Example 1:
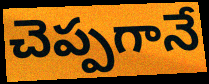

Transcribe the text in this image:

చెప్పగానే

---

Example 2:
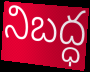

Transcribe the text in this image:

నిబద్ధ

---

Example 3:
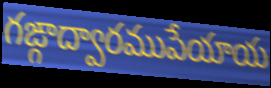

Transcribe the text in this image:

గఙ్గాద్వారముపేయాయ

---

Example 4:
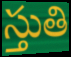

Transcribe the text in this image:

స్తుతి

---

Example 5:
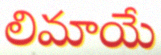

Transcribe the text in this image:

లిమాయే